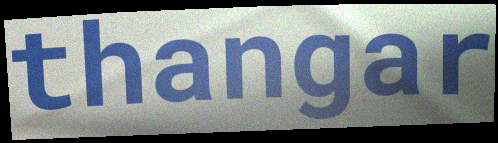
thangar